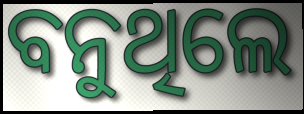
ବନୁଥିଲେ